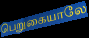
பெறுகையாலே